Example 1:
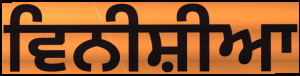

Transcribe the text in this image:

ਵਿਨੀਸ਼ੀਆ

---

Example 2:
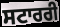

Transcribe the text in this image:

ਸਟਾਰਰੀ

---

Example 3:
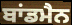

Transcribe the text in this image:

ਬਾਂਡਮੈਨ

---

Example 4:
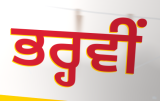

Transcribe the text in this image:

ਭਰ੍ਹਵੀਂ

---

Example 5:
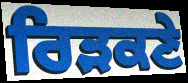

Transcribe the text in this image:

ਰਿੜਕਣੇ